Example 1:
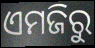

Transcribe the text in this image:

ଏମଜିରୁ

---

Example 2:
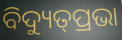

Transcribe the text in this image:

ବିଦ୍ୟୁତ୍‌ପ୍ରଭା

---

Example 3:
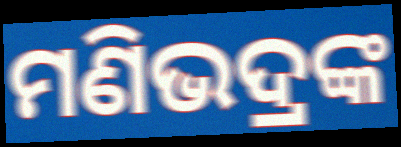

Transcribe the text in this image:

ମଣିଭଦ୍ରଙ୍କ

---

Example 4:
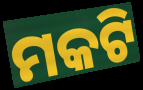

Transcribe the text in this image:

ମକଟି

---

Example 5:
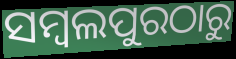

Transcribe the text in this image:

ସମ୍ବଲପୁରଠାରୁ